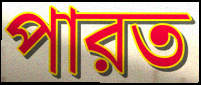
পারত